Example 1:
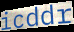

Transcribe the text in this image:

icddr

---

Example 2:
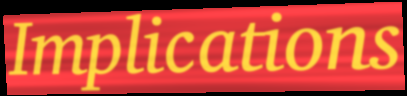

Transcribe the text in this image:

Implications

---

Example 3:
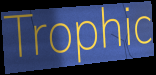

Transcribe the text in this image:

Trophic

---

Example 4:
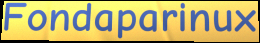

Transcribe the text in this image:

Fondaparinux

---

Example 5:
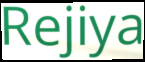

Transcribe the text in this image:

Rejiya